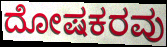
ದೋಷಕರವು